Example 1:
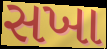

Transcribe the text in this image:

સખા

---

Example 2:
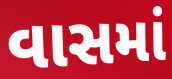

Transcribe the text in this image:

વાસમાં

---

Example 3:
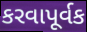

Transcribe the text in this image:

કરવાપૂર્વક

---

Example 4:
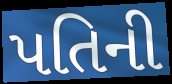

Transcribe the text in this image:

પતિની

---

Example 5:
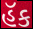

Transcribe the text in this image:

હૅક